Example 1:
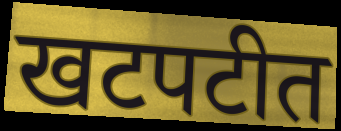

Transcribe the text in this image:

खटपटीत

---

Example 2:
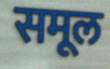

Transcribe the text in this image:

समूल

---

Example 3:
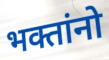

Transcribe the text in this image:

भक्तांनो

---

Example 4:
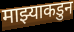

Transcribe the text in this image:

माझ्याकडुन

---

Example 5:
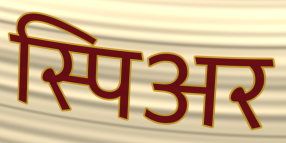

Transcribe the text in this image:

स्पिअर